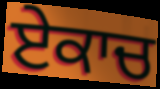
ਏਕਾਚ